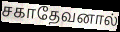
சகாதேவனால்